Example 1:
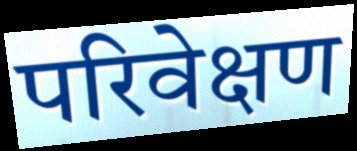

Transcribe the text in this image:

परिवेक्षण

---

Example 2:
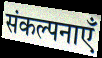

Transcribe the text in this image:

संकल्पनाएँ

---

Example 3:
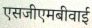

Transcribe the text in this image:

एसजीएमबीवाई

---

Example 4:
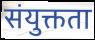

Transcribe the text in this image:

संयुक्तता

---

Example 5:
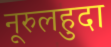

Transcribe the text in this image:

नूरुलहुदा